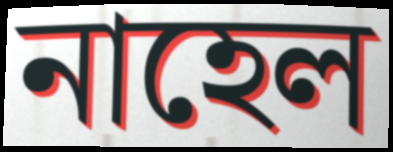
নাহেল